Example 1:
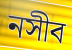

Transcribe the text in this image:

নসীব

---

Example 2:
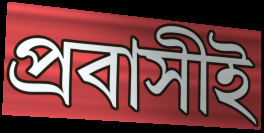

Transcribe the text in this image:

প্রবাসীই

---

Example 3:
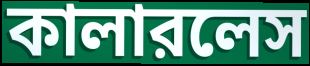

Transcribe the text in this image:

কালারলেস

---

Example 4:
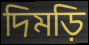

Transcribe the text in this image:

দিমড়ি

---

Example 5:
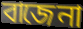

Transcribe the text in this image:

বাজেনা